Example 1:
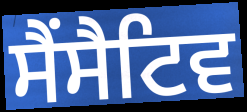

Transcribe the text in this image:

ਸੈਂਸੈਟਿਵ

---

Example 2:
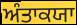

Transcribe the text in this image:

ਅੰਤਾਕਯਾ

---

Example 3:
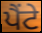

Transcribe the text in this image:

ਪੈਂਟੇ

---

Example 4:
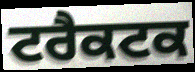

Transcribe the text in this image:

ਟਰੈਕਟਕ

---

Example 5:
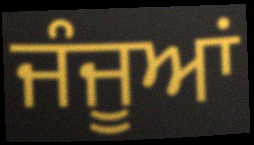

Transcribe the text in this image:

ਜੰਜੂਆਂ